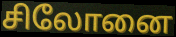
சிலோனை